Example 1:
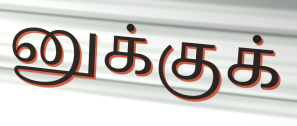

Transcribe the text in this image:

னுக்குக்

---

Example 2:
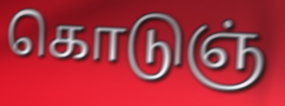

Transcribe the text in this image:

கொடுஞ்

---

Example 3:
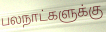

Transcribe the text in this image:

பலநாட்களுக்கு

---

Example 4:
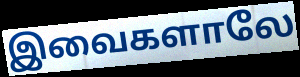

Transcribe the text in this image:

இவைகளாலே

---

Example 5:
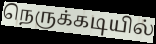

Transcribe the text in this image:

நெருக்கடியில்